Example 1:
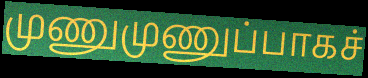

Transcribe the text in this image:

முணுமுணுப்பாகச்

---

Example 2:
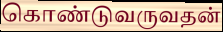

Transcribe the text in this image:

கொண்டுவருவதன்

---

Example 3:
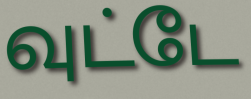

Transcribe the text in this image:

வுட்டே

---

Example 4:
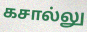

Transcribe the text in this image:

கசால்லு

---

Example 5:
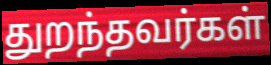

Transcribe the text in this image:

துறந்தவர்கள்